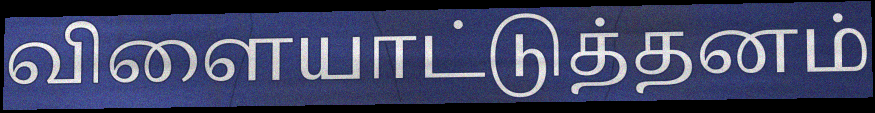
விளையாட்டுத்தனம்